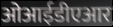
ओआईडीएआर